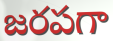
జరపగా